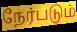
நேர்படும்